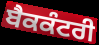
ਬੈਕਕੰਟਰੀ